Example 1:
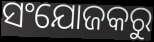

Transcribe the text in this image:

ସଂଯୋଜକରୁ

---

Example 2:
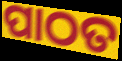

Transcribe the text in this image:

ପାଠତ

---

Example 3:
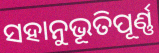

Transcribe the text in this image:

ସହାନୁଭୂତିପୂର୍ଣ୍ଣ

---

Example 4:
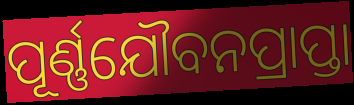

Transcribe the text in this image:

ପୂର୍ଣ୍ଣଯୌବନପ୍ରାପ୍ତା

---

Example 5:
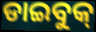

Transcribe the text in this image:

ଡାଇବୁକ୍